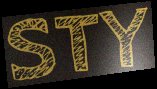
STY